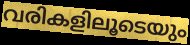
വരികളിലൂടെയും